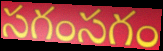
సగంసగం